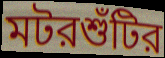
মটরশুঁটির